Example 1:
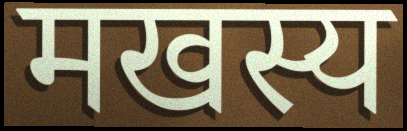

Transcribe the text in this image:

मखस्य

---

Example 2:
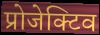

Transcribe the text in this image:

प्रोजेक्टिव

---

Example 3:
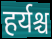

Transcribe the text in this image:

हर्यश्च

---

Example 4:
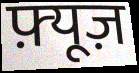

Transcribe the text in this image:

फ़्यूज़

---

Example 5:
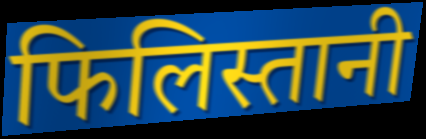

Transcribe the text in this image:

फिलिस्तानी